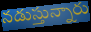
నడుస్తున్నారు